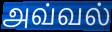
அவ்வல்